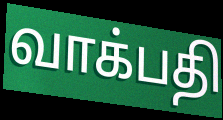
வாக்பதி